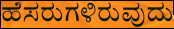
ಹೆಸರುಗಳಿರುವುದು